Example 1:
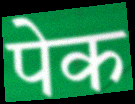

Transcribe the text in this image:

पेक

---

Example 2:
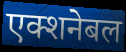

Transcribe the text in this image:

एक्शनेबल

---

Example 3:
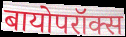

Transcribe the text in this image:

बायोपरॉक्स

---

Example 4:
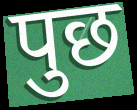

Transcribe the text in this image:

पुछ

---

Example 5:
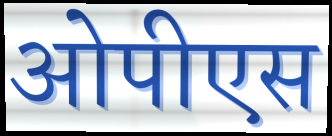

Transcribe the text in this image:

ओपीएस